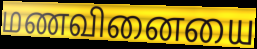
மணவினையை